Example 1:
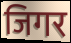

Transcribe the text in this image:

जिगर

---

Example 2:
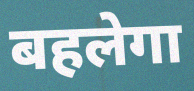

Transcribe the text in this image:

बहलेगा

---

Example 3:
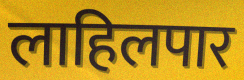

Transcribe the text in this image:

लाहिलपार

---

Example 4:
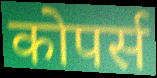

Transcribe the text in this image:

कोपर्स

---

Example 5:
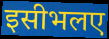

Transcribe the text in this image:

इसीभलए